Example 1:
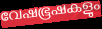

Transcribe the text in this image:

വേഷഭൂഷകളും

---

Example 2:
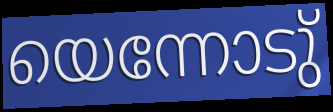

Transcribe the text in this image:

യെന്നോടു്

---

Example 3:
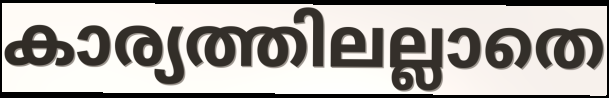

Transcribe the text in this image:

കാര്യത്തിലല്ലാതെ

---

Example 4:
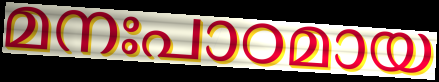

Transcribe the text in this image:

മനഃപാഠമായ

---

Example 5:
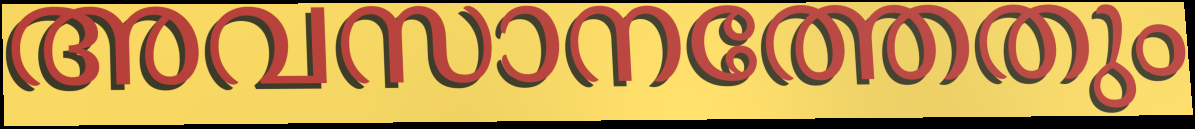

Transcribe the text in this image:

അവസാനത്തേതും